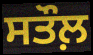
ਸਤੌਲ਼